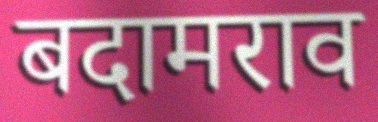
बदामराव